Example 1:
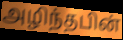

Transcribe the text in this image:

அழிந்தபின்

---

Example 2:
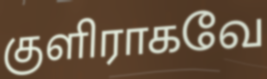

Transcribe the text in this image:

குளிராகவே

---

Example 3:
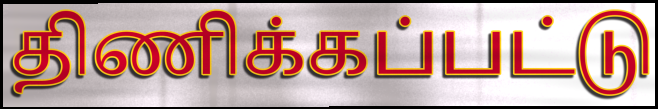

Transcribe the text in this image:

திணிக்கப்பட்டு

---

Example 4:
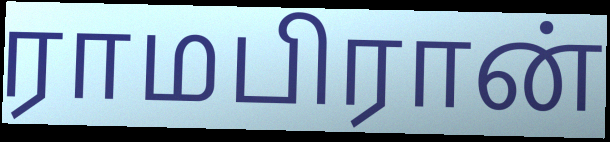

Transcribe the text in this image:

ராமபிரான்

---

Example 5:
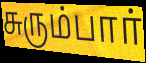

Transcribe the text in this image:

சுரும்பார்